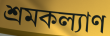
শ্রমকল্যাণ